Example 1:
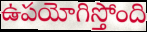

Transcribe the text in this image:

ఉపయోగిస్తోంది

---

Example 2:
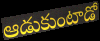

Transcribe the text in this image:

ఆడుకుంటాడో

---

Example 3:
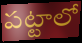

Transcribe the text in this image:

పట్టాలో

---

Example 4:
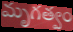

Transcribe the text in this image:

మృగత్వం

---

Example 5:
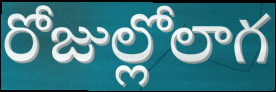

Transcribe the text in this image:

రోజుల్లోలాగ